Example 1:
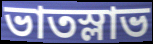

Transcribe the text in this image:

ভাতস্লাভ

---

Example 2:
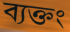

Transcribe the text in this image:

ব্যক্তং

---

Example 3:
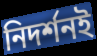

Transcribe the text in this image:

নিদর্শনই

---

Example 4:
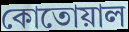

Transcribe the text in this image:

কোতোয়াল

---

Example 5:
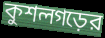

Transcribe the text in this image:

কুশলগড়ের